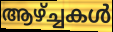
ആഴ്ച്ചകൾ